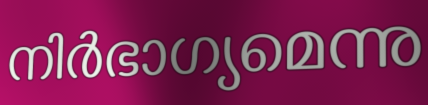
നിർഭാഗ്യമെന്നു